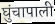
घुंचापाली